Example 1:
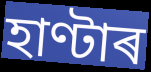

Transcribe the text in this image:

হাণ্টাৰ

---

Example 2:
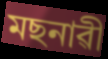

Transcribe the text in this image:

মছনাৱী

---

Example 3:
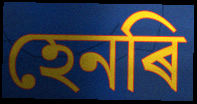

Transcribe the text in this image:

হেনৰি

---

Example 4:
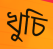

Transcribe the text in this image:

খুচি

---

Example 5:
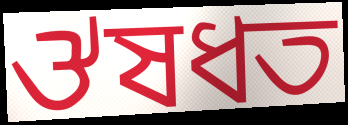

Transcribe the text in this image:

ঔষধত